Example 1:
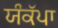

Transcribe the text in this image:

ਯੰਕੱਪਾ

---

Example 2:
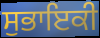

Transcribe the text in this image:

ਸੁਭਾਇਕੀ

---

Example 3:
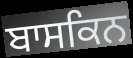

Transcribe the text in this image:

ਬਾਸਕਿਨ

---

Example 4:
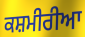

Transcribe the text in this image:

ਕਸ਼ਮੀਰੀਆ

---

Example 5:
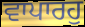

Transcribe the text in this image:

ਵਾਪਾਰਹੁ